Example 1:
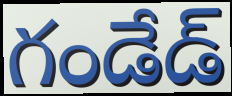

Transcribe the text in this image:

గండేడ్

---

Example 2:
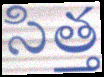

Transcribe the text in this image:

సిత్త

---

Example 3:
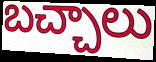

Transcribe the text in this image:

బచ్చాలు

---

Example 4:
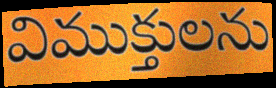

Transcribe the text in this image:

విముక్తులను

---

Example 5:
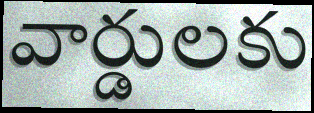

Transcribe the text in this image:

వార్డులకు